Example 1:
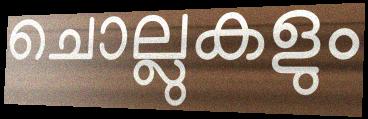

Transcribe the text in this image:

ചൊല്ലുകളും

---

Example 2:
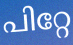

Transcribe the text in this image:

പിറ്റേ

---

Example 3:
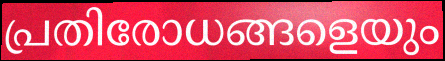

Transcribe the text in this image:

പ്രതിരോധങ്ങളെയും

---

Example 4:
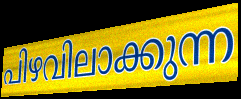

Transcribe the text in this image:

പിഴവിലാക്കുന്ന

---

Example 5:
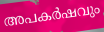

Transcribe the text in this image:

അപകർഷവും